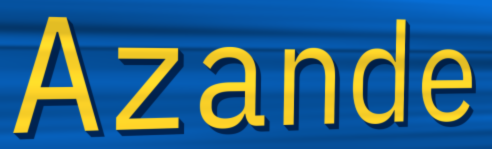
Azande